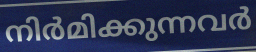
നിർമിക്കുന്നവർ